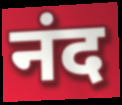
नंद